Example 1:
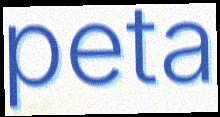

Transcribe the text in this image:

peta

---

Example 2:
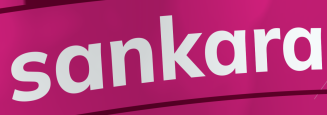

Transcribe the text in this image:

sankara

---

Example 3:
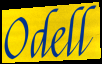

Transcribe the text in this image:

Odell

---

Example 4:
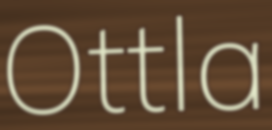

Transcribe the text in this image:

Ottla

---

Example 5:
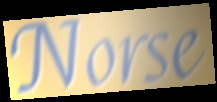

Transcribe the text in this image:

Norse